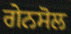
ਗੇਨਸੋਲ